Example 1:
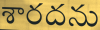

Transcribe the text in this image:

శారదను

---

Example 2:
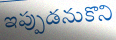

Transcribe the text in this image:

ఇప్పుడనుకొని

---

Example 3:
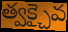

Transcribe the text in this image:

త్వక్చైవ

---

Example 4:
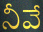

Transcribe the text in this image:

నీవే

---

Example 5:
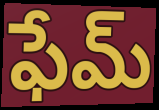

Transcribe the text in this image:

ఫేమ్